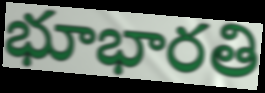
భూభారతి